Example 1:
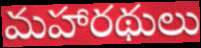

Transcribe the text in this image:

మహారథులు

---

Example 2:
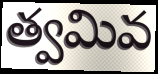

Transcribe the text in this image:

త్వమివ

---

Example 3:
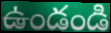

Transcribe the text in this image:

ఉండండి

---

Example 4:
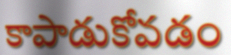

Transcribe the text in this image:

కాపాడుకోవడం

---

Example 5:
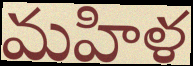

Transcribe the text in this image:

మహిళ